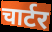
चार्टर